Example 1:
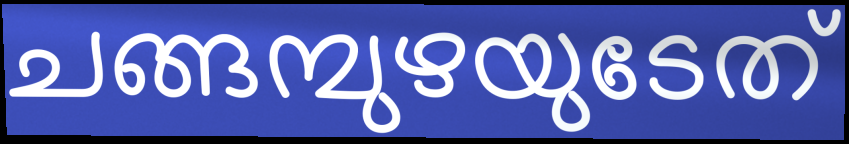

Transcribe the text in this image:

ചങ്ങമ്പുഴയുടേത്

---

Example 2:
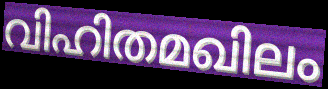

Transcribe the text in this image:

വിഹിതമഖിലം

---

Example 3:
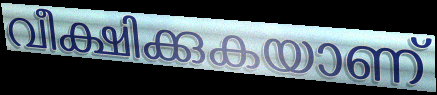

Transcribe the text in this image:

വീക്ഷിക്കുകയാണ്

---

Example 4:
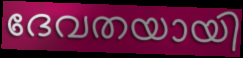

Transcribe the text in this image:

ദേവതയായി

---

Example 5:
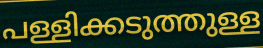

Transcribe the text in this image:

പള്ളിക്കടുത്തുള്ള